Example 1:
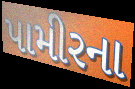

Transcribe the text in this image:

પામીરના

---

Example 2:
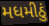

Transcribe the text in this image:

મધમીઠું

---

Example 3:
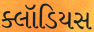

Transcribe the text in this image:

ક્લૉડિયસ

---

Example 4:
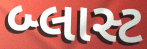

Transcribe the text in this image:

બ્લાસ્ટ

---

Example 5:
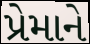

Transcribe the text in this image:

પ્રેમાને